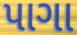
પાગા